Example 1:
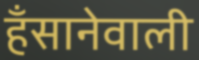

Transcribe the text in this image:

हँसानेवाली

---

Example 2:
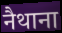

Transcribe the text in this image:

नैथाना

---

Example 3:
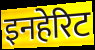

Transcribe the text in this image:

इनहेरिट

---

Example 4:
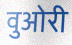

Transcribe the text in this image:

वुओरी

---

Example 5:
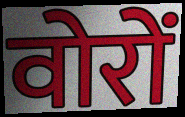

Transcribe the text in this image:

वोरों